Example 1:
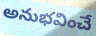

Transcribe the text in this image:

అనుభవించే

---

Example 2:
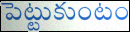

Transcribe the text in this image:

పెట్టుకుంటం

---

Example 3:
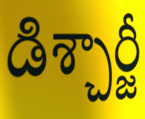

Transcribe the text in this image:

డిశ్చార్జీ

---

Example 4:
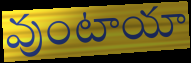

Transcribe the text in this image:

వుంటాయా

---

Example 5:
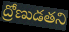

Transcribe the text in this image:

ద్రోణుడతని